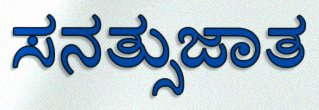
ಸನತ್ಸುಜಾತ